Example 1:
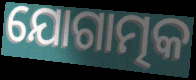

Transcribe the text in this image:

ଯୋଗାତ୍ମକ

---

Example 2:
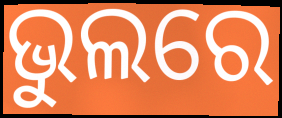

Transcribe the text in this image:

ଭୁଲରେ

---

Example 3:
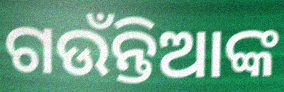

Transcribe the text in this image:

ଗଉଁନ୍ତିଆଙ୍କ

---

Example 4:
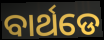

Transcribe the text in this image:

ବାର୍ଥଡେ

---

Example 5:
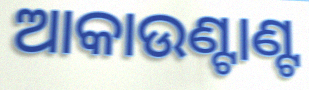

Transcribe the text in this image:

ଆକାଉଣ୍ଟାଣ୍ଟ